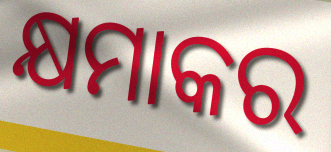
କ୍ଷମାକର